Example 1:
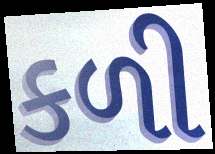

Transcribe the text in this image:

કળી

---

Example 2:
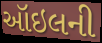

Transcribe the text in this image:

ઑઇલની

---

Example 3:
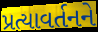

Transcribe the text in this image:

પ્રત્યાવર્તનને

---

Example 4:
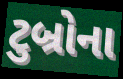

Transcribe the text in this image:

ટુબ્રોના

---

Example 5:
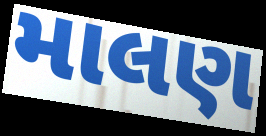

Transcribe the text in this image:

માલણ